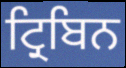
ਟ੍ਰਿਬਿਨ